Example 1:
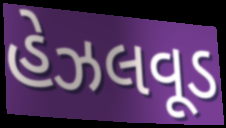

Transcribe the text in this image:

હેઝલવૂડ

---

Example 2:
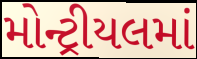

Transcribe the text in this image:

મોન્ટ્રીયલમાં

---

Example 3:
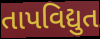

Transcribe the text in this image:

તાપવિદ્યુત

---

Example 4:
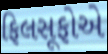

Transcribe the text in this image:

ફિલસૂફોએ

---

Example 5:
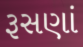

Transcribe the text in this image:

રૂસણાં